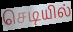
செடியில்